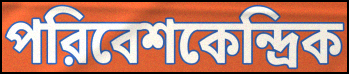
পরিবেশকেন্দ্রিক